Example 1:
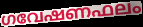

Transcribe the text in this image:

ഗവേഷണഫലം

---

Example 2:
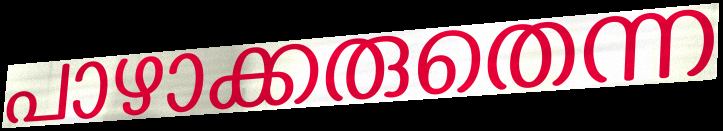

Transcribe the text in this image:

പാഴാക്കരുതെന്ന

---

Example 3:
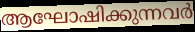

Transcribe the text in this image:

ആഘോഷിക്കുന്നവർ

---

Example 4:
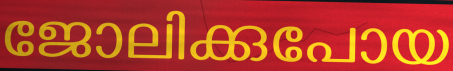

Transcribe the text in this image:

ജോലിക്കുപോയ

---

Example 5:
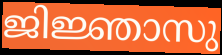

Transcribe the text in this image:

ജിജ്ഞാസു